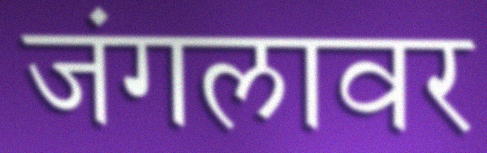
जंगलावर